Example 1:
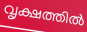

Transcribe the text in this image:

വൃക്ഷത്തിൽ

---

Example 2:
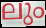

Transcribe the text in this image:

ലും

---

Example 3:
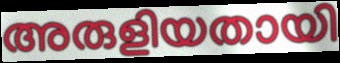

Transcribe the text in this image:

അരുളിയതായി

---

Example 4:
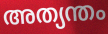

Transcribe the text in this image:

അത്യന്തം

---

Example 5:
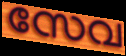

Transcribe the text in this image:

സേവ